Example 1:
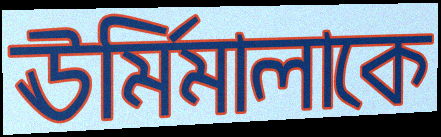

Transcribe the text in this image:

ঊর্মিমালাকে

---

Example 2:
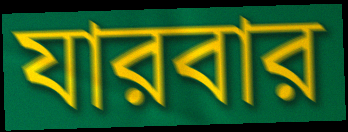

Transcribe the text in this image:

যারবার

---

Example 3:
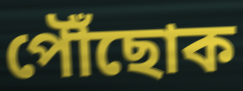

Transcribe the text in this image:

পৌঁছোক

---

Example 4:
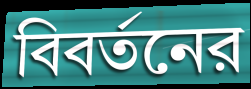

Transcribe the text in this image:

বিবর্তনের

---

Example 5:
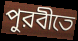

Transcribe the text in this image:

পুরবীতে